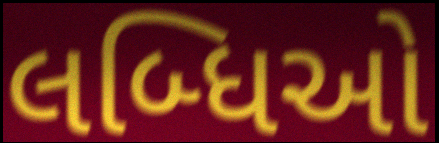
લબ્ધિઓ